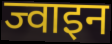
ज्‍वाइन